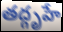
తద్గృహే